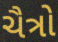
ચૈત્રો